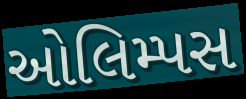
ઓલિમ્પસ